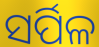
ସର୍ପିଳ